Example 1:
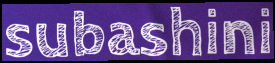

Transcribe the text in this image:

subashini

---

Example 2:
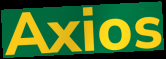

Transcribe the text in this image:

Axios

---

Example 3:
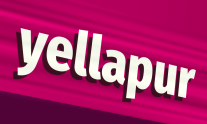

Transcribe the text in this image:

yellapur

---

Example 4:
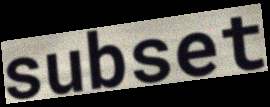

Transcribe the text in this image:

subset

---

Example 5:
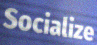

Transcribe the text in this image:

Socialize